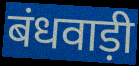
बंधवाड़ी